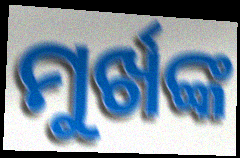
ମୁର୍ଖଙ୍କ